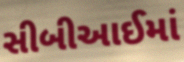
સીબીઆઈમાં